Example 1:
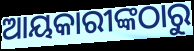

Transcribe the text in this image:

ଆୟକାରୀଙ୍କଠାରୁ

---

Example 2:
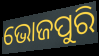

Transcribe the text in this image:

ଭୋଜପୁରି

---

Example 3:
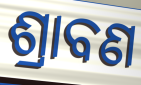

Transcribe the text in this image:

ଶ୍ରାବଣ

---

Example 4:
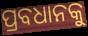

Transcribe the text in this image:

ପ୍ରବଧାନକୁ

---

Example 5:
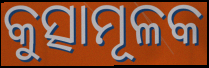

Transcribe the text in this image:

କୁତ୍ସାମୂଳକ